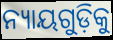
ନ୍ୟାୟଗୁଡ଼ିକୁ